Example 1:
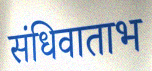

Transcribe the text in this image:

संधिवाताभ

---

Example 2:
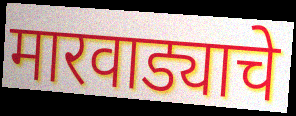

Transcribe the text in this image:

मारवाड्याचे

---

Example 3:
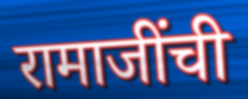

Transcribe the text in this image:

रामाजींची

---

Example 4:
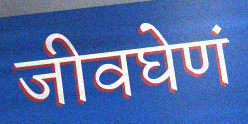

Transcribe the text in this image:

जीवघेणं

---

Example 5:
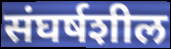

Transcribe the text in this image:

संघर्षशील